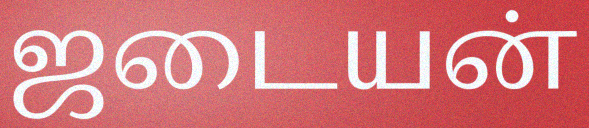
ஜடையன்